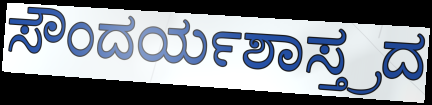
ಸೌಂದರ್ಯಶಾಸ್ತ್ರದ